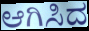
ಆಗಿಸಿದ